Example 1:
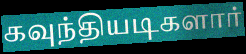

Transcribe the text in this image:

கவுந்தியடிகளார்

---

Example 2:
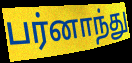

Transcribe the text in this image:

பர்னாந்து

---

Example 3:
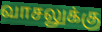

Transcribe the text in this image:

வாசலுக்கு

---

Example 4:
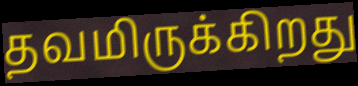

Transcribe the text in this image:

தவமிருக்கிறது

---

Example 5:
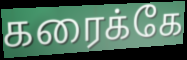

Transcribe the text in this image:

கரைக்கே